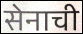
सेनाची